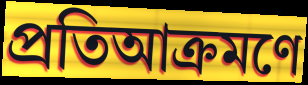
প্রতিআক্রমণে